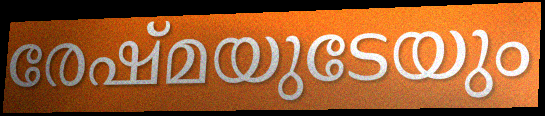
രേഷ്മയുടേയും